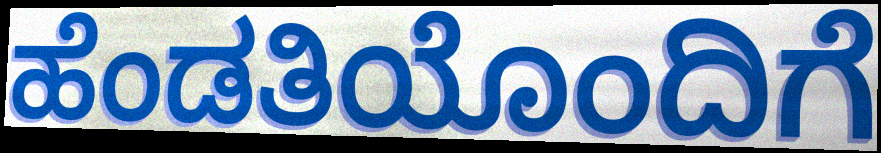
ಹೆಂಡತಿಯೊಂದಿಗೆ